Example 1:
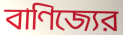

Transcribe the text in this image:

বাণিজ্যের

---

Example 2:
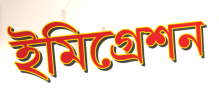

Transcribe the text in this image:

ইমিগ্রেশন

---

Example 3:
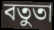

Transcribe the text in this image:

বতুতা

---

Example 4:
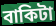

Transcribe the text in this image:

বাকিটা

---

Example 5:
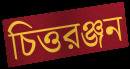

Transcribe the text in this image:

চিত্তরঞ্জন